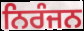
ਨਿਰੰਜਨ